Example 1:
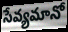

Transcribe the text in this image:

సేవ్యమానో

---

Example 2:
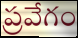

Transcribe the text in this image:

ప్రవేగం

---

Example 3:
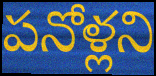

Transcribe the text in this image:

పనోళ్లని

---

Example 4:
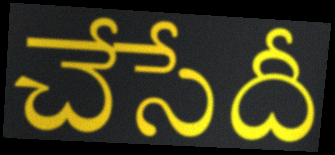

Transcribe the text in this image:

చేసేదీ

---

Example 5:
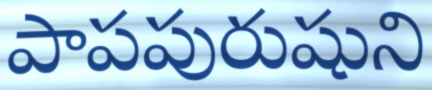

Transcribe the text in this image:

పాపపురుషుని